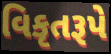
વિકૃતરૂપે